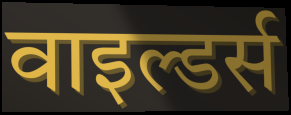
वाइल्डर्स